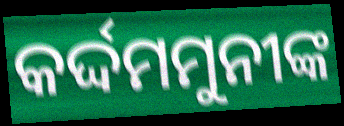
କର୍ଦ୍ଦମମୁନୀଙ୍କ